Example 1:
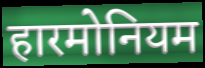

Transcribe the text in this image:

हारमोनियम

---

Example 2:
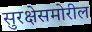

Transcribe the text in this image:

सुरक्षेसमोरील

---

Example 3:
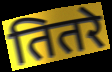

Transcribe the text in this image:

तितरे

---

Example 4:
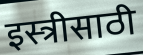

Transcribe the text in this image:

इस्त्रीसाठी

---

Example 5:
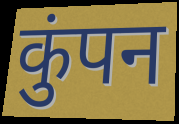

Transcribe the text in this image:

कुंपन